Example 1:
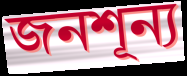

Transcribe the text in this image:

জনশূন্য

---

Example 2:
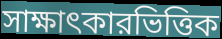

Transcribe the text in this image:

সাক্ষাৎকারভিত্তিক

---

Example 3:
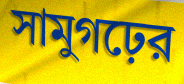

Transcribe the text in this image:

সামুগঢ়ের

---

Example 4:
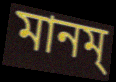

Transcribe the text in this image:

মানম্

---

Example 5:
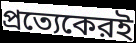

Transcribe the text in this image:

প্রত্যেকেরই